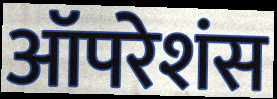
ऑपरेशंस